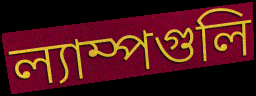
ল্যাম্পগুলি